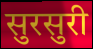
सुरसुरी